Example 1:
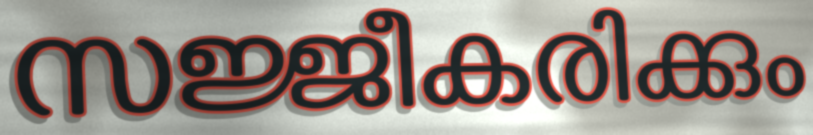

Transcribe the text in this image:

സജ്ജീകരിക്കും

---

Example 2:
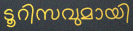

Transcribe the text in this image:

ടൂറിസവുമായി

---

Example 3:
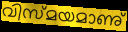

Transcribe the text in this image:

വിസ്മയമാണു്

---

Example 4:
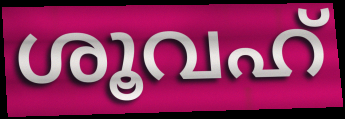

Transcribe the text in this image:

ശൂവഹ്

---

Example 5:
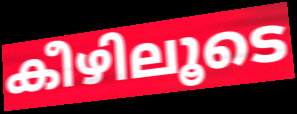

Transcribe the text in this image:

കീഴിലൂടെ